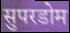
सुपरडोम